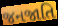
જનજાતિ